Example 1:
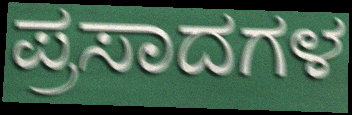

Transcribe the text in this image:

ಪ್ರಸಾದಗಳ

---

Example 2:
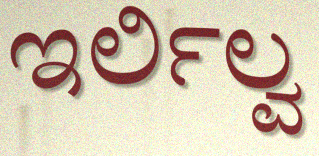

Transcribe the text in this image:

ಇರ್ಲಿಲ್ವ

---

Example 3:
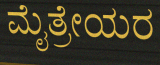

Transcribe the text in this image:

ಮೈತ್ರೇಯರ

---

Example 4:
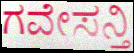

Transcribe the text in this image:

ಗವೇಸನ್ತಿ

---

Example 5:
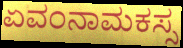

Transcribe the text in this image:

ಏವಂನಾಮಕಸ್ಸ